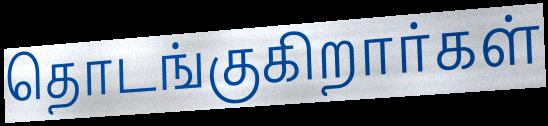
தொடங்குகிறார்கள்